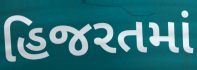
હિજરતમાં